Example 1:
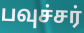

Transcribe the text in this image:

பவுச்சர்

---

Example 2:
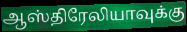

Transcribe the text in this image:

ஆஸ்திரேலியாவுக்கு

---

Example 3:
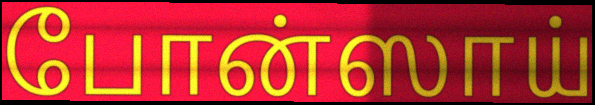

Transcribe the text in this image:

போன்ஸாய்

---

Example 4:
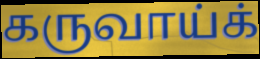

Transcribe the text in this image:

கருவாய்க்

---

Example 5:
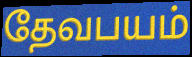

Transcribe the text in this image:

தேவபயம்